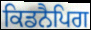
ਕਿਡਨੈਪਿਗ